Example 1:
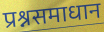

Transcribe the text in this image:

प्रश्नसमाधान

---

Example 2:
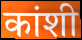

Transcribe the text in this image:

कांशी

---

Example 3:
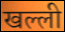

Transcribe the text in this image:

खल्ली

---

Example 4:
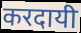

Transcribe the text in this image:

करदायी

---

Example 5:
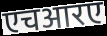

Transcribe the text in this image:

एचआरए